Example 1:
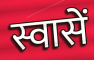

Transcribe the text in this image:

स्वासें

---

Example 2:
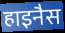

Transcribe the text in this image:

हाइनैस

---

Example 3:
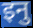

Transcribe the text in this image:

इनु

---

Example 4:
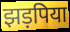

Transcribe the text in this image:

झड़पिया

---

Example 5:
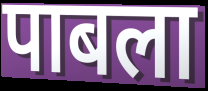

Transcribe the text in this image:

पाबला